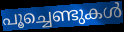
പൂച്ചെണ്ടുകൾ